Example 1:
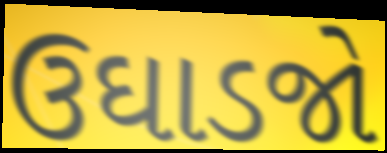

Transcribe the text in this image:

ઉઘાડજો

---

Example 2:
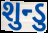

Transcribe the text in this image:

શુન્ડુ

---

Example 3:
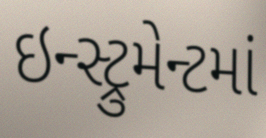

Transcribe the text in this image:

ઇન્સ્ટ્રુમેન્ટમાં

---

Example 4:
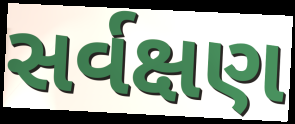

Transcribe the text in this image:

સર્વક્ષણ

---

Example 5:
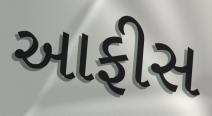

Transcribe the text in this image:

આફીસ